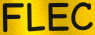
FLEC